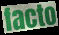
facto